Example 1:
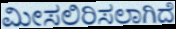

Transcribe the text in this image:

ಮೀಸಲಿರಿಸಲಾಗಿದೆ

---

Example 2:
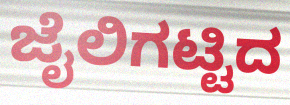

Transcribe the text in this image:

ಜೈಲಿಗಟ್ಟಿದ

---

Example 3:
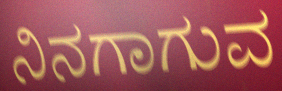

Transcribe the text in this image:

ನಿನಗಾಗುವ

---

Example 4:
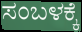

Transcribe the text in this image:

ಸಂಬಳಕ್ಕೆ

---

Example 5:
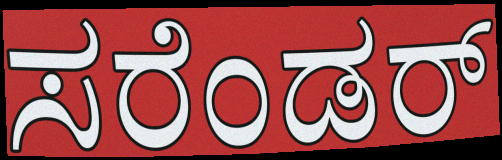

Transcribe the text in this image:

ಸರೆಂಡರ್